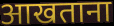
आखताना